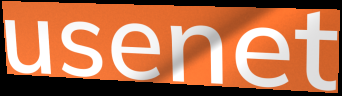
usenet